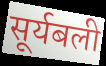
सूर्यबली